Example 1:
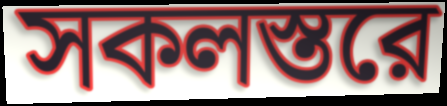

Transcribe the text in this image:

সকলস্তরে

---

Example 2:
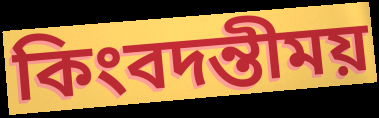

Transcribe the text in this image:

কিংবদন্তীময়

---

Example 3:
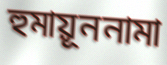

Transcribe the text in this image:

হুমায়ূননামা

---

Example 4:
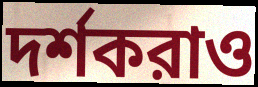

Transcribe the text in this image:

দর্শকরাও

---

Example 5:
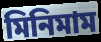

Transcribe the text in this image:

মিনিমাম